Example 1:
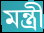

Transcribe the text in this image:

মন্ত্রী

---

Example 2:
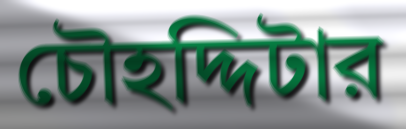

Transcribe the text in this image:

চৌহদ্দিটার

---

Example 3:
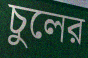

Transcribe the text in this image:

চুলের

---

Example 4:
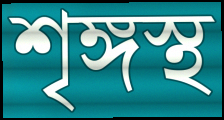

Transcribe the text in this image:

শৃঙ্গস্থ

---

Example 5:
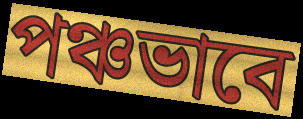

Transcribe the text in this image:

পঞ্চভাবে